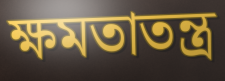
ক্ষমতাতন্ত্র